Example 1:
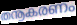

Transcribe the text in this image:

തനൂകരണം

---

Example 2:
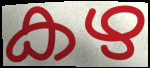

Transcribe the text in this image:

കഴ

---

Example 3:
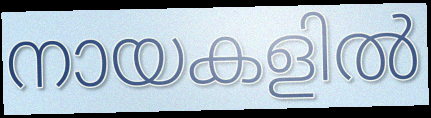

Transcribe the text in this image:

നായകളിൽ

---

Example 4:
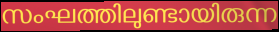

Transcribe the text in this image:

സംഘത്തിലുണ്ടായിരുന്ന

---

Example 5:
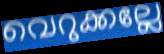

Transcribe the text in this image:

വെറുക്കല്ലേ